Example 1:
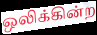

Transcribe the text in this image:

ஒலிக்கின்ற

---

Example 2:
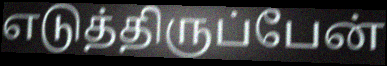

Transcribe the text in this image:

எடுத்திருப்பேன்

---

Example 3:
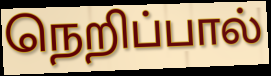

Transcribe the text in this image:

நெறிப்பால்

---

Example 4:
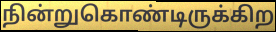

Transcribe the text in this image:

நின்றுகொண்டிருக்கிற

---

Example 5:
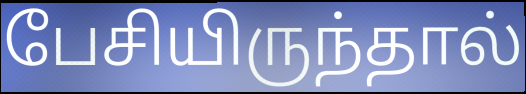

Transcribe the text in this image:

பேசியிருந்தால்